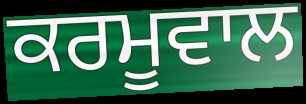
ਕਰਮੂਵਾਲ